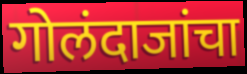
गोलंदाजांचा